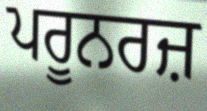
ਪਰੂਨਰਜ਼